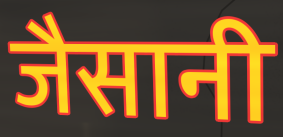
जैसानी